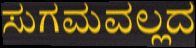
ಸುಗಮವಲ್ಲದ